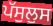
ਪੱਸੁਲੁਸ